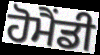
ਹੋਮੈਂਡੀ